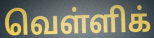
வெள்ளிக்